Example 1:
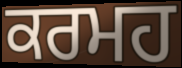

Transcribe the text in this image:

ਕਰਮਹ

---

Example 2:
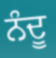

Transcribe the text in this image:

ਨੰਦੂ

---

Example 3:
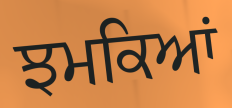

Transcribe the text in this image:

ਝਮਕਿਆਂ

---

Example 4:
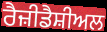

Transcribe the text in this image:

ਰੈਜ਼ੀਡੈਸ਼ੀਅਲ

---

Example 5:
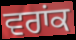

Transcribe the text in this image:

ਵਰਾਂਕ